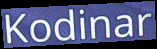
Kodinar